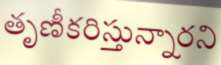
తృణీకరిస్తున్నారని